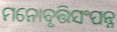
ମନୋବୃତ୍ତିସଂପନ୍ନ